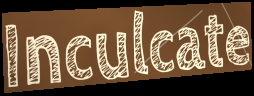
Inculcate